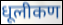
धूलीकण